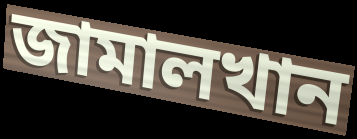
জামালখান